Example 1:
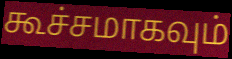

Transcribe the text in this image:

கூச்சமாகவும்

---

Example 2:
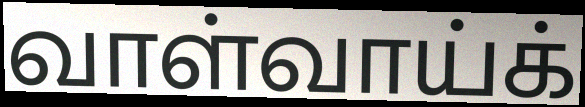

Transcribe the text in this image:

வாள்வாய்க்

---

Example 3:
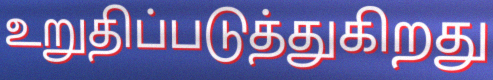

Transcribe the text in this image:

உறுதிப்படுத்துகிறது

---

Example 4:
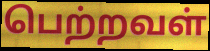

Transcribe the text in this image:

பெற்றவள்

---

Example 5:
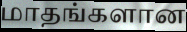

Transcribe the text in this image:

மாதங்களான